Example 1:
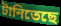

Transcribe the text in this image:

টানিতেছে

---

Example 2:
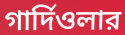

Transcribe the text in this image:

গার্দিওলার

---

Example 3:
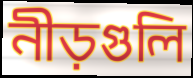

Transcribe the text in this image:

নীড়গুলি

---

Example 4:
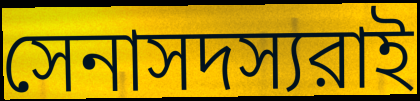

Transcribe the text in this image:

সেনাসদস্যরাই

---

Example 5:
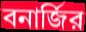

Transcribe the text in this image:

বনার্জির